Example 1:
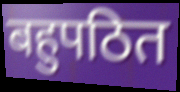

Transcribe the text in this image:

बहुपठित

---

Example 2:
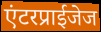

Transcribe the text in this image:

एंटरप्राईजेज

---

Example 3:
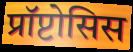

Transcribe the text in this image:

प्रॉप्टोसिस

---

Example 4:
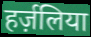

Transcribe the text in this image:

हर्ज़लिया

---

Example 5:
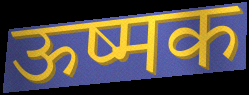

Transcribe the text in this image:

ऊष्मक